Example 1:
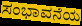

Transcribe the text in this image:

ಸಂಭಾವನೆಯ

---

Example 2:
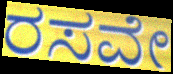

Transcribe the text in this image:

ರಸವೇ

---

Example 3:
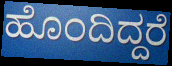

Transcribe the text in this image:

ಹೊಂದಿದ್ದರೆ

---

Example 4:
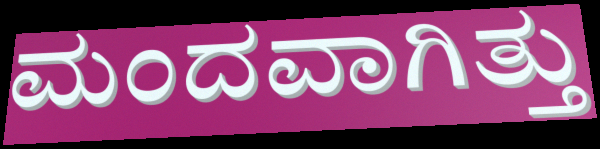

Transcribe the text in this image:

ಮಂದವಾಗಿತ್ತು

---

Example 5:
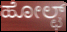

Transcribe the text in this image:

ಹೋಲ್ಟ್